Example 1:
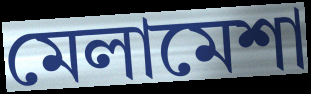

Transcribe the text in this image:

মেলামেশা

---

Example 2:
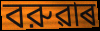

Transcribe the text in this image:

বৰুৱাৰ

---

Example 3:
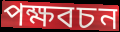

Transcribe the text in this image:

পক্ষবচন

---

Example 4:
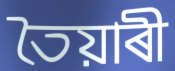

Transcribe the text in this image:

তৈয়াৰী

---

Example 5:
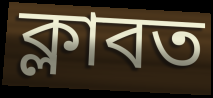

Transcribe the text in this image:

ক্লাবত